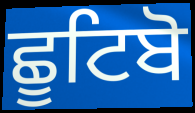
ਛੂਟਿਬੋ